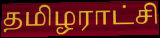
தமிழராட்சி